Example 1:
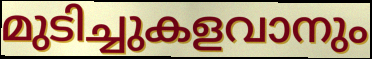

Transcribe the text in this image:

മുടിച്ചുകളവാനും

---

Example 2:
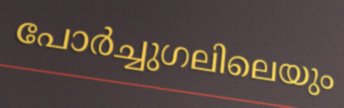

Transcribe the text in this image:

പോർച്ചുഗലിലെയും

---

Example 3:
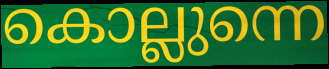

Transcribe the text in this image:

കൊല്ലുന്നെ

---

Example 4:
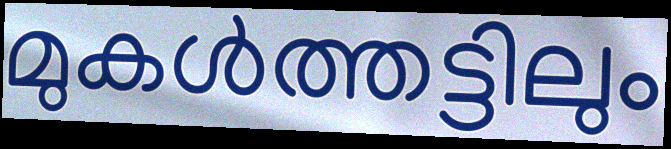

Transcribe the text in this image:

മുകൾത്തട്ടിലും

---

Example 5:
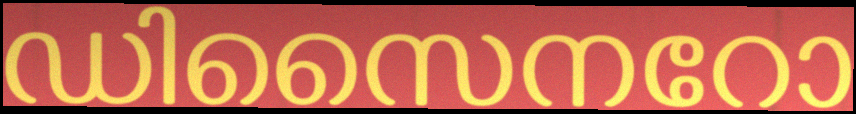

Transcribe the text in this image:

ഡിസൈനറോ